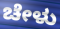
ಚೇಳು